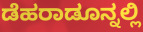
ಡೆಹರಾಡೂನ್ನಲ್ಲಿ